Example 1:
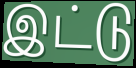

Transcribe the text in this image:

இட்டு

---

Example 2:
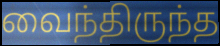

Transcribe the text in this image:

வைந்திருந்த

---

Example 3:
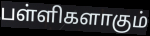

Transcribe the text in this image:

பள்ளிகளாகும்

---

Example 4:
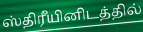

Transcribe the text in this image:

ஸ்திரீயினிடத்தில்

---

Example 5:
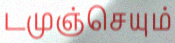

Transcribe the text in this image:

டமுஞ்செயும்